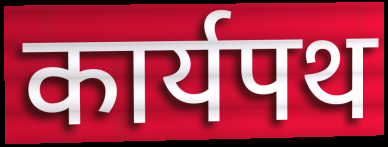
कार्यपथ